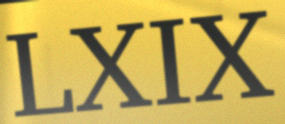
LXIX